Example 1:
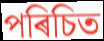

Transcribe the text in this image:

পৰিচিত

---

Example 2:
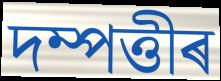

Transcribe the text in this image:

দম্পত্তীৰ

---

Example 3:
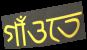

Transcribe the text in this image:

গাঁওতে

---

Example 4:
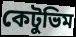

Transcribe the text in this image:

কেটুভিম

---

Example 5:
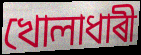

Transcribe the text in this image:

খোলাধাৰী